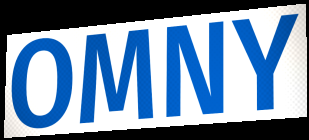
OMNY